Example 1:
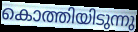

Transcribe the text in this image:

കൊത്തിയിടുന്നു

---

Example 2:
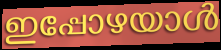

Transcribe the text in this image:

ഇപ്പോഴയാൾ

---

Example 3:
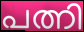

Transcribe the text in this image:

പത്നി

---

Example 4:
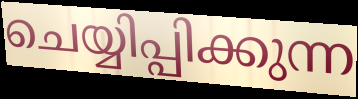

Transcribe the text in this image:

ചെയ്യിപ്പിക്കുന്ന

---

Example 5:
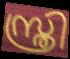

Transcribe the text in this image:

സ്ത്രി